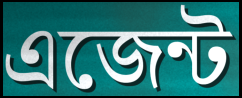
এজেন্ট